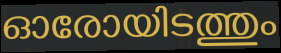
ഓരോയിടത്തും